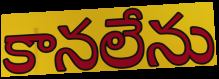
కానలేను